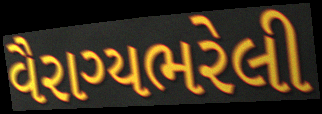
વૈરાગ્યભરેલી